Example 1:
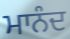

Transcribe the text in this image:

ਮਾਨੰਦ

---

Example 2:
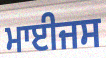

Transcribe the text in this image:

ਮਾਈਜਸ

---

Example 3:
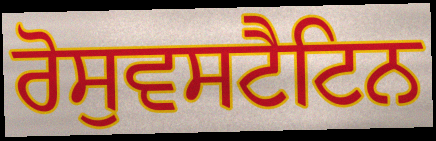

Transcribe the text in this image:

ਰੋਸੁਵਸਟੈਟਿਨ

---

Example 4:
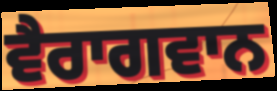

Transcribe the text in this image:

ਵੈਰਾਗਵਾਨ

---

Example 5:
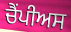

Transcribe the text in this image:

ਚੈਂਪੀਅਸ